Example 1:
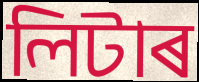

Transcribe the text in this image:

লিটাৰ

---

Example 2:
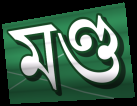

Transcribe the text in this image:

মণ্ড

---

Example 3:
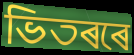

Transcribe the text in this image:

ভিতৰৰে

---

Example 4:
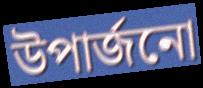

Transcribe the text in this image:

উপাৰ্জনো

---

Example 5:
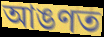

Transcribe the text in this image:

আঙণত